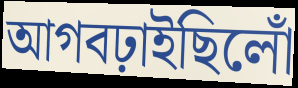
আগবঢ়াইছিলোঁ